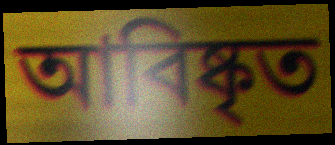
আবিষ্কৃত